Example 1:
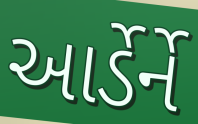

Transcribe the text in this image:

આર્ડેર્ને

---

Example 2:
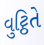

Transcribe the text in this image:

વુટ્ઠિતે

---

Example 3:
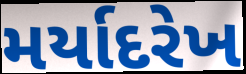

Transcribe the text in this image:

મર્યાદરેખ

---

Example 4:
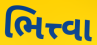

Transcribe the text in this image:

ભિત્ત્વા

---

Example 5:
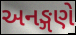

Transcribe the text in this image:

અનઙ્ગણે